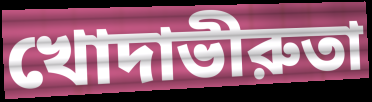
খোদাভীরুতা